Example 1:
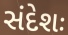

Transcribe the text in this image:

સંદેશઃ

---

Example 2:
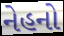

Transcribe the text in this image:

નેહનો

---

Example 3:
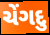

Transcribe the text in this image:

ચેંગદુ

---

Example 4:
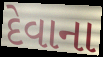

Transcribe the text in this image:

દેવાના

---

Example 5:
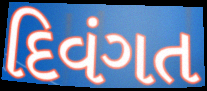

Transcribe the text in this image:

દિવંગત